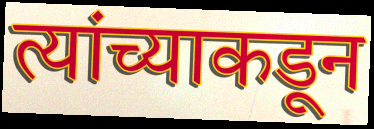
त्यांच्याकडून